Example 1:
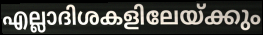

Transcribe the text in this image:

എല്ലാദിശകളിലേയ്ക്കും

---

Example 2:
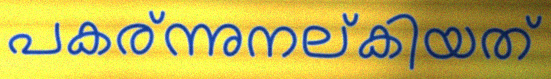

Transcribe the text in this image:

പകര്ന്നുനല്കിയത്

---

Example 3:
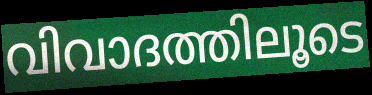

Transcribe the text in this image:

വിവാദത്തിലൂടെ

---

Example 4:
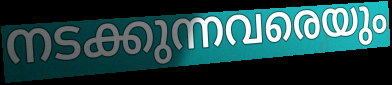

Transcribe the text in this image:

നടക്കുന്നവരെയും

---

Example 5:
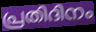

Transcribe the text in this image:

പ്രതിദിനം